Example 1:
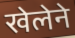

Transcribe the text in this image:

खेलेने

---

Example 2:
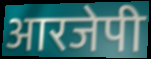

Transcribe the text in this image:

आरजेपी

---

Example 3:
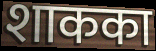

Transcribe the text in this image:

शाकका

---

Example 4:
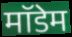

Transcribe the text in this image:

मॉडेम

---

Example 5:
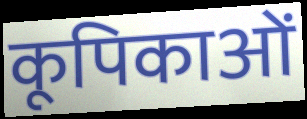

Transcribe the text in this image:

कूपिकाओं